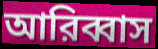
আরিব্বাস